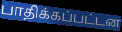
பாதிக்கப்பட்டன